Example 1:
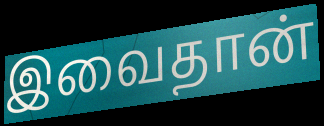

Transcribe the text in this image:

இவைதான்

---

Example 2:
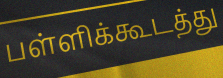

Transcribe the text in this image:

பள்ளிக்கூடத்து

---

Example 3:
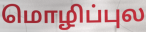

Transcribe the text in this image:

மொழிப்புல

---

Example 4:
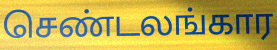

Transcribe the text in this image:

செண்டலங்கார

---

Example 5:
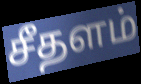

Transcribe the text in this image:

சீதளம்